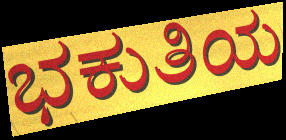
ಭಕುತಿಯ